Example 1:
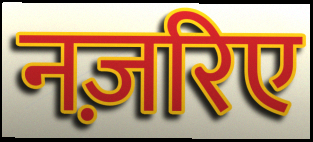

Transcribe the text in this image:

नज़रिए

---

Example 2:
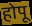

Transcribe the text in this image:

होपू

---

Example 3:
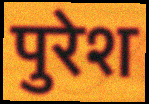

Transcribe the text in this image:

पुरेश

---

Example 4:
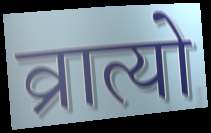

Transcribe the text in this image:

व्रात्यो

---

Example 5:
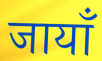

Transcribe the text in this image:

जायाँ